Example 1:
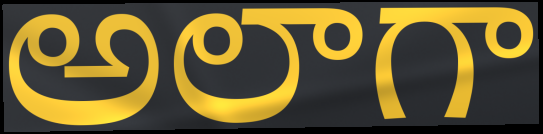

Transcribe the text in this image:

అలాగా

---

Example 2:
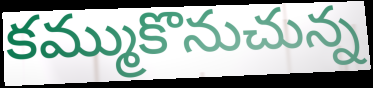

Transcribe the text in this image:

కమ్ముకొనుచున్న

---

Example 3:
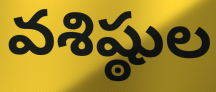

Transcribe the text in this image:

వశిష్ఠుల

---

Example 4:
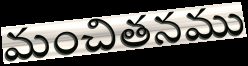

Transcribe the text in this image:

మంచితనము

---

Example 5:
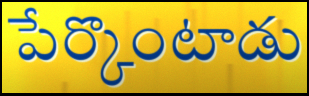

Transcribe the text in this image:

పేర్కొంటాడు